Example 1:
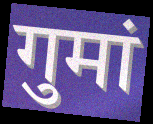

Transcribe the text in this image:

गुमां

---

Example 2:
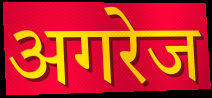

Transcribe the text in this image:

अगरेज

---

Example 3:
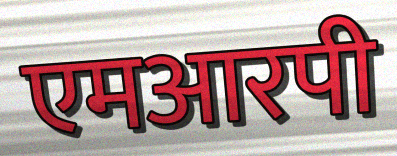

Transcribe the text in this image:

एमआरपी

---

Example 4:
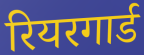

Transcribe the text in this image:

रियरगार्ड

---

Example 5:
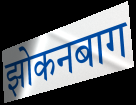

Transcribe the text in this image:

झोकनबाग